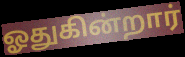
ஓதுகின்றார்